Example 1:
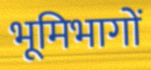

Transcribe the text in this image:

भूमिभागों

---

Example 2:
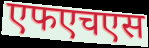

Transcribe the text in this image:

एफएचएस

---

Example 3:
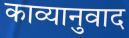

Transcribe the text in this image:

काव्यानुवाद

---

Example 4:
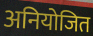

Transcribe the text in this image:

अनियोजित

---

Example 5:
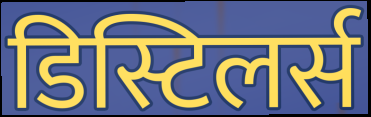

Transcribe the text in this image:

डिस्टिलर्स